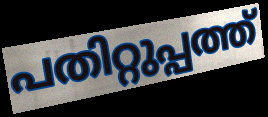
പതിറ്റുപ്പത്ത്